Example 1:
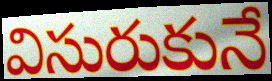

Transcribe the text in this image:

విసురుకునే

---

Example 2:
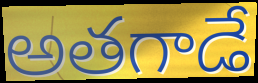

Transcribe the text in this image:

అతగాడే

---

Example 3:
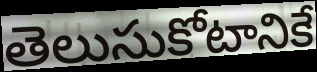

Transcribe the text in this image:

తెలుసుకోటానికే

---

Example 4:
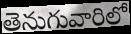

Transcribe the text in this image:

తెనుగువారిలో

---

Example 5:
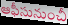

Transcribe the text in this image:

ఆఫీసునుంచీ